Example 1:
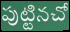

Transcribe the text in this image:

పుట్టినచో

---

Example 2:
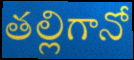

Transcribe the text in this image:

తల్లిగానో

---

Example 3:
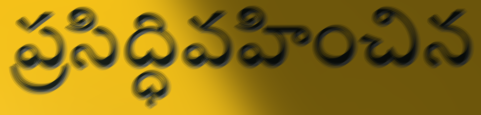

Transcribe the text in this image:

ప్రసిద్ధివహించిన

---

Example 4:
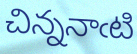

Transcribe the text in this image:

చిన్ననాఁటి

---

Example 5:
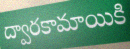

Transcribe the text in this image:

ద్వారకామాయికి